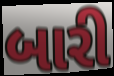
બારી